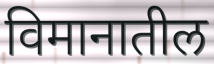
विमानातील